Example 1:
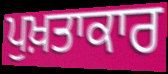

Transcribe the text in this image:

ਪੁਖ਼ਤਾਕਾਰ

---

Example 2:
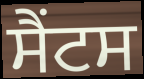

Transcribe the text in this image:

ਸੈਂਟਸ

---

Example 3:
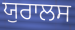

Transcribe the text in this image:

ਯੁਰਾਲਸ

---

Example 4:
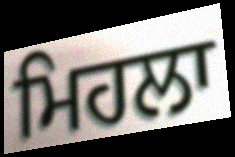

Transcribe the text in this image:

ਮਿਹਲਾ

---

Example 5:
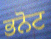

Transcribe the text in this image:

ਭਨੋਟ